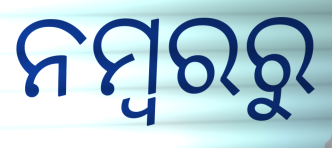
ନମ୍ବରରୁ